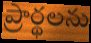
ప్రార్థలను